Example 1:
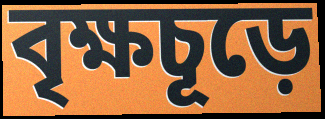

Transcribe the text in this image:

বৃক্ষচূড়ে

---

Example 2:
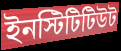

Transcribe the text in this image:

ইনস্টিটিটিউট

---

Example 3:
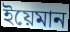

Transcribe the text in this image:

ইয়েমান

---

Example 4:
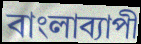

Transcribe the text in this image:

বাংলাব্যাপী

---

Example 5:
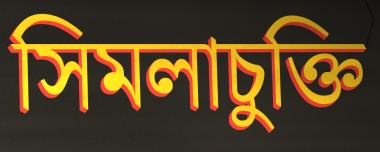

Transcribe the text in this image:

সিমলাচুক্তি